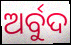
ଅର୍ବୁଦ